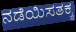
ನಡೆಯಿಸತಕ್ಕ